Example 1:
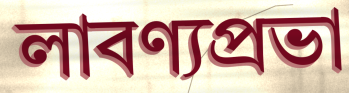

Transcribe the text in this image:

লাবণ্যপ্রভা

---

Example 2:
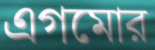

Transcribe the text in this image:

এগমোর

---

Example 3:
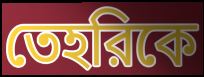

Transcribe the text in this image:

তেহরিকে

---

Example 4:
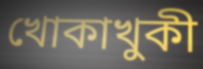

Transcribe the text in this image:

খোকাখুকী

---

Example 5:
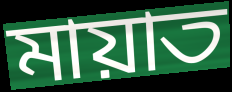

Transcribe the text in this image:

মায়াত